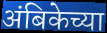
अंबिकेच्या